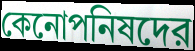
কেনোপনিষদের